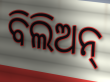
ବିଲିଅନ୍